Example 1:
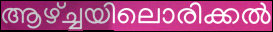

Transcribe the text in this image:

ആഴ്ച്ചയിലൊരിക്കൽ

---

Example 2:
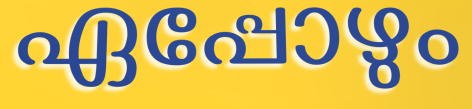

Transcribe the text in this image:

ഏപ്പോഴും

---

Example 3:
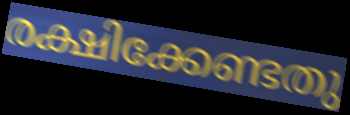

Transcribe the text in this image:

രക്ഷിക്കേണ്ടതു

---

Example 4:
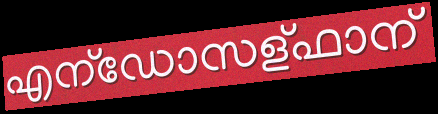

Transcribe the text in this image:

എന്ഡോസള്ഫാന്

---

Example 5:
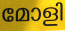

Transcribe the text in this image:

മോളി